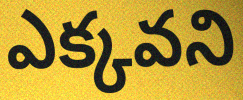
ఎక్కవని